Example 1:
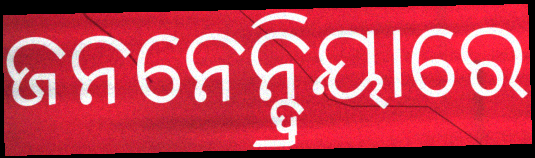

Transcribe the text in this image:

ଜନନେନ୍ଦ୍ରିୟାରେ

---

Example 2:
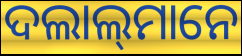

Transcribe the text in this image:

ଦଲାଲ୍‍ମାନେ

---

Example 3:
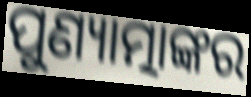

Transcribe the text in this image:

ପୁଣ୍ୟାତ୍ମାଙ୍କର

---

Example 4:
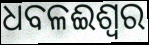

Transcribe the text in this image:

ଧବଳଈଶ୍ବର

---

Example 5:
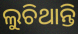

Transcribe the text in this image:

ଲୁଚିଥାନ୍ତି